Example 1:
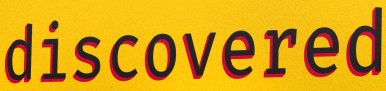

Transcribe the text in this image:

discovered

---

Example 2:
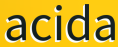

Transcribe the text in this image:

acida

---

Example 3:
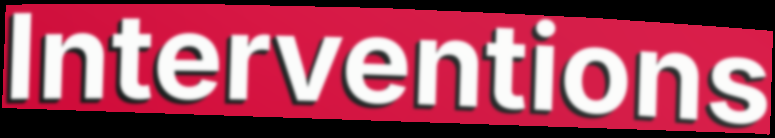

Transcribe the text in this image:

Interventions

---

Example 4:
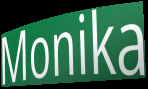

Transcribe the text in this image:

Monika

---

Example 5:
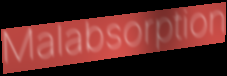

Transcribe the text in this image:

Malabsorption